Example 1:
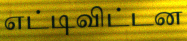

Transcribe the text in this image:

எட்டிவிட்டன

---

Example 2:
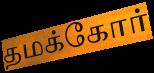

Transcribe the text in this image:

தமக்கோர்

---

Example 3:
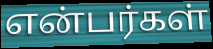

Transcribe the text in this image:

என்பர்கள்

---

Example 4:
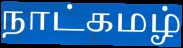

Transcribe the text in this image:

நாட்கமழ்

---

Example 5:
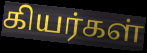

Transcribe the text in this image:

கியர்கள்